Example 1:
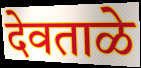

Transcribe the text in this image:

देवताळे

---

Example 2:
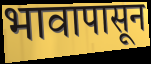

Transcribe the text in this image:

भावापासून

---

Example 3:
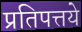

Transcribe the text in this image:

प्रतिपत्तये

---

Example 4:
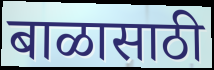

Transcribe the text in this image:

बाळासाठी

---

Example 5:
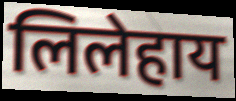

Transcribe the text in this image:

लिलेहाय